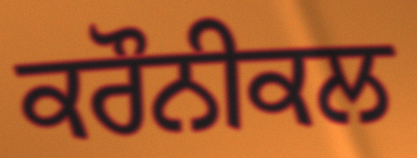
ਕਰੌਨੀਕਲ